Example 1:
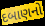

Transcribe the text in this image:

દબાણનો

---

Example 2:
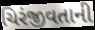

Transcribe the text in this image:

ચિરંજીવતાની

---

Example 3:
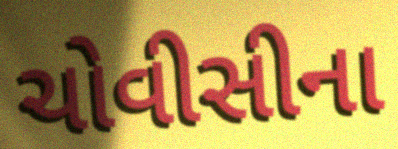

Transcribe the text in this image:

ચોવીસીના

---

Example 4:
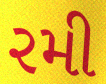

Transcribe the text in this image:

રમી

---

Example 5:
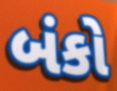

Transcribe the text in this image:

બંકો